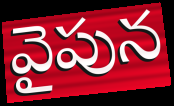
వైపున